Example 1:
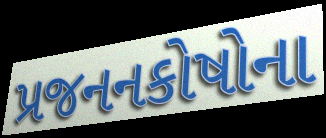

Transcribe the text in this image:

પ્રજનનકોષોના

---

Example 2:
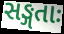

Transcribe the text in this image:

સઙ્ગતાઃ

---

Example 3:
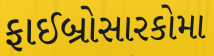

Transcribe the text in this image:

ફાઈબ્રોસારકોમા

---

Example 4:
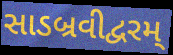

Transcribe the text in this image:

સાડબ્રવીદ્વરમ્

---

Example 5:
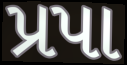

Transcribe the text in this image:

પ્રપા